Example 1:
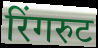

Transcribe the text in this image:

रिंगरुट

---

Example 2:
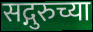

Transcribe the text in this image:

सद्गुरुच्या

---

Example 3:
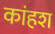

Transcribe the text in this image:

कांहश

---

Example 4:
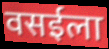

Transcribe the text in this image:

वसईला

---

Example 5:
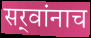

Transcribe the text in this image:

सर्वांनाच